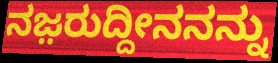
ನಜ಼ರುದ್ದೀನನನ್ನು